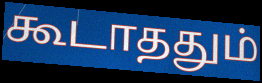
கூடாததும்